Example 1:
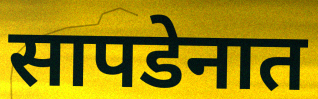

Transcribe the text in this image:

सापडेनात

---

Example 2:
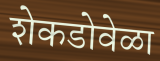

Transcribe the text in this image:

शेकडोवेळा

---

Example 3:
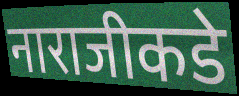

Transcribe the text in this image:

नाराजीकडे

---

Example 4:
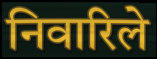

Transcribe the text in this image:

निवारिले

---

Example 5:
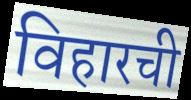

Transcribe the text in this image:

विहारची